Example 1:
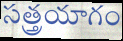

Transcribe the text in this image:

సత్త్రయాగం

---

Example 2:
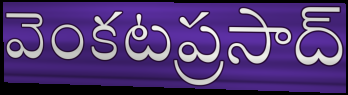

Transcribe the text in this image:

వెంకటప్రసాద్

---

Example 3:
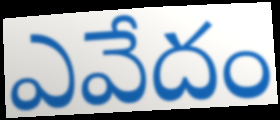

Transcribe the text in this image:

ఎవేదం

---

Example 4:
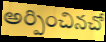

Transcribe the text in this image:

అర్పించినచో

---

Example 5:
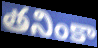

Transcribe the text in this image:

తనింకా